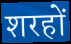
शरहों